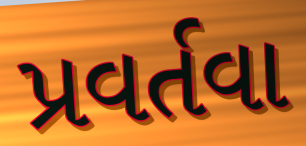
પ્રવર્તવા